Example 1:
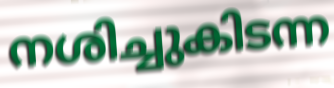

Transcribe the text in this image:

നശിച്ചുകിടന്ന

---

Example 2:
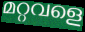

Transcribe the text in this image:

മറ്റവളെ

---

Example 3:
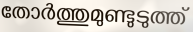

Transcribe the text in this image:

തോർത്തുമുണ്ടുടുത്ത്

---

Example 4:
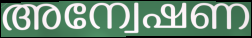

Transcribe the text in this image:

അന്വേഷണ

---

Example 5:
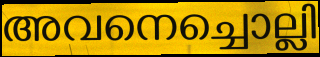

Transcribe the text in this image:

അവനെച്ചൊല്ലി